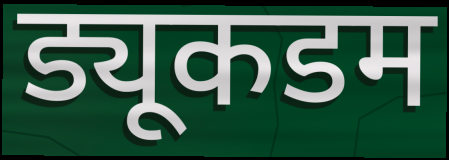
ड्यूकडम